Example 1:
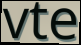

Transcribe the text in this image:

vte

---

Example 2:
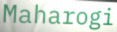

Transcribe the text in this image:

Maharogi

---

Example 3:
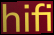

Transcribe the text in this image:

hifi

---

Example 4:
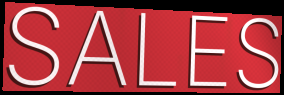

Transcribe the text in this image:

SALES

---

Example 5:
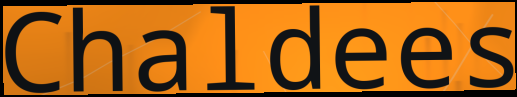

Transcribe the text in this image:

Chaldees